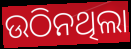
ଉଠିନଥିଲା